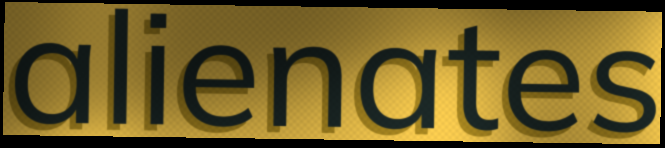
alienates